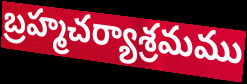
బ్రహ్మచర్యాశ్రమము